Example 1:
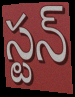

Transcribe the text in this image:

స్టన్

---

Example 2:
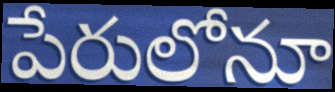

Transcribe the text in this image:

పేరులోనూ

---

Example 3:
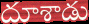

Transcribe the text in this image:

దూశాడు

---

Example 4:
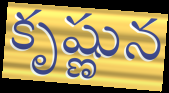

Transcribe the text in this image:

కృష్ణున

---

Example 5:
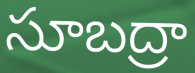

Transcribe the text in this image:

సూబద్రా